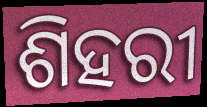
ଶିହରୀ